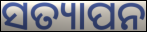
ସତ୍ୟାପନ